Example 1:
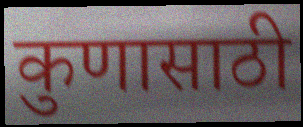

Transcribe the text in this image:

कुणासाठी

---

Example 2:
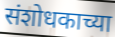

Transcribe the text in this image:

संशोधकाच्या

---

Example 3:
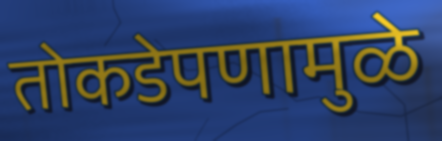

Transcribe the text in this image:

तोकडेपणामुळे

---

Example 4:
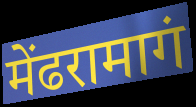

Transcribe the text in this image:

मेंढरामागं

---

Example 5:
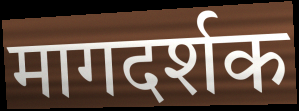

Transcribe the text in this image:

मागदर्शक